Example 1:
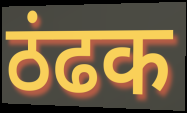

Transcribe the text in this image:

ठंढक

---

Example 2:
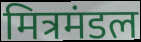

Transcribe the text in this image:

मित्रमंडल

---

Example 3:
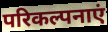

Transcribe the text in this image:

परिकल्पनाएं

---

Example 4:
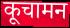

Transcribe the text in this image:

कूचामन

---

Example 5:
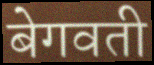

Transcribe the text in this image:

बेगवती